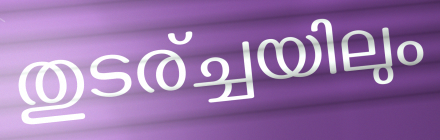
തുടര്ച്ചയിലും